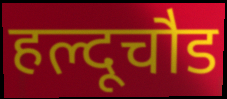
हल्दूचौड